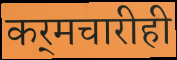
कर्मचारीही